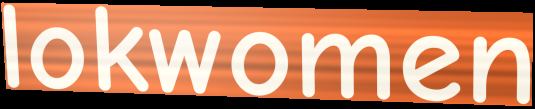
lokwomen